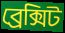
ব্রেক্সিট